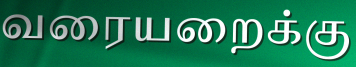
வரையறைக்கு